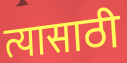
त्यासाठी